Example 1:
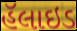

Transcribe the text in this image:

હૅલાઇડ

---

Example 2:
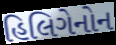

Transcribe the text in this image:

હિલિગેનોન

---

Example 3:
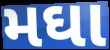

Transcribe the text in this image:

મઘા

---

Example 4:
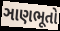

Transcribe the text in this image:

ઞાણભૂતો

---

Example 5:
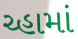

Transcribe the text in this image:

ચ્હામાં